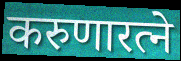
करुणारत्ने